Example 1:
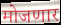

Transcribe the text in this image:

मोजणार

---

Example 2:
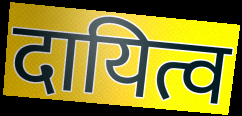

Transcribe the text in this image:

दायित्व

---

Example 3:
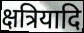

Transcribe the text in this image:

क्षत्रियादि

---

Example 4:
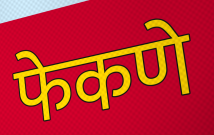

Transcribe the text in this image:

फेकणे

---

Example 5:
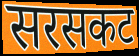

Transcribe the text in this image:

सरसकट